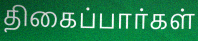
திகைப்பார்கள்